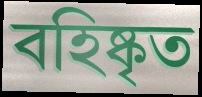
বহিষ্কৃত